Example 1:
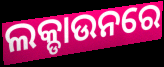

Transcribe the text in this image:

ଲକ୍ଡାଉନରେ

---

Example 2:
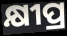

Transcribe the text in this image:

କ୍ଷୀପ୍ର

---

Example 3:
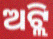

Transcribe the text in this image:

ଅଟ୍ଲି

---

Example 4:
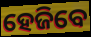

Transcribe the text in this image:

ହେଜିବେ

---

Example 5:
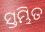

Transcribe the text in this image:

ସ୍ତମ୍ଭିତ